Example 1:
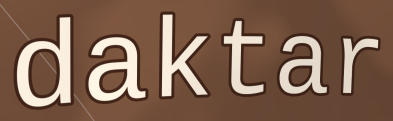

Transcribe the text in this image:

daktar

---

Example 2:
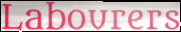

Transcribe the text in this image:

Labourers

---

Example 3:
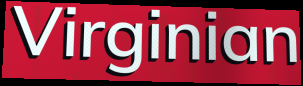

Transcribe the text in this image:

Virginian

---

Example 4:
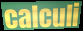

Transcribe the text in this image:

calculi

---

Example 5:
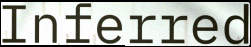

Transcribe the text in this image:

Inferred